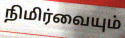
நிமிர்வையும்